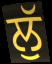
ਲੁੱ